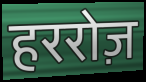
हररोज़